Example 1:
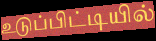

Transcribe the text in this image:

உடுப்பிட்டியில்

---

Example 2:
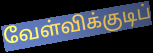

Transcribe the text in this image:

வேள்விக்குடிப்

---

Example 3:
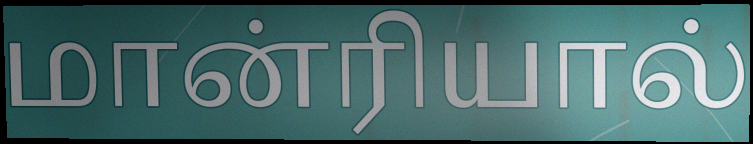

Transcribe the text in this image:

மான்ரியால்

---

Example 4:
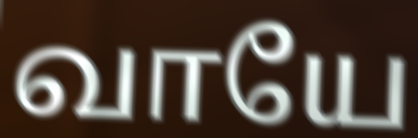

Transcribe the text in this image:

வாயே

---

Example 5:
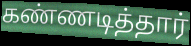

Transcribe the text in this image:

கண்ணடித்தார்